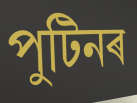
পুটিনৰ